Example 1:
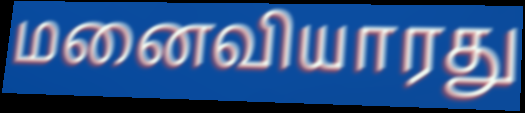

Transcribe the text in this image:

மனைவியாரது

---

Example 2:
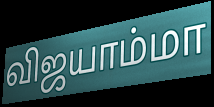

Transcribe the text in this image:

விஜயாம்மா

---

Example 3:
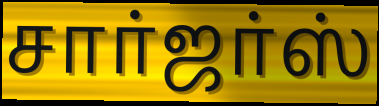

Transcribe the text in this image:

சார்ஜர்ஸ்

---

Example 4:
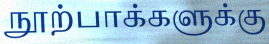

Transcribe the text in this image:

நூற்பாக்களுக்கு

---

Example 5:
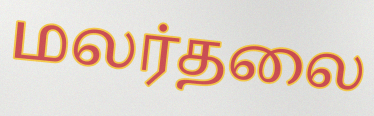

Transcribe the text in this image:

மலர்தலை